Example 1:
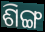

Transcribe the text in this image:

ଶିଙ୍ଗ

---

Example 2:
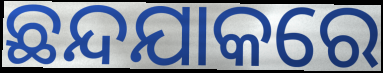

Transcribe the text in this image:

ଛନ୍ଦଯାକରେ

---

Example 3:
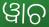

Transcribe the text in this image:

ୱାଚ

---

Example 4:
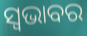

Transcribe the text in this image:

ସ୍ଵଭାବର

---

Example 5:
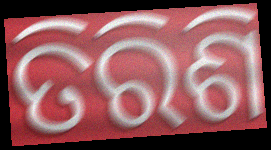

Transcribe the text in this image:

ତିରିଶି